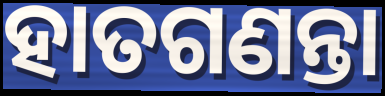
ହାତଗଣନ୍ତା